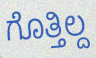
ಗೊತ್ತಿಲ್ದ